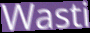
Wasti